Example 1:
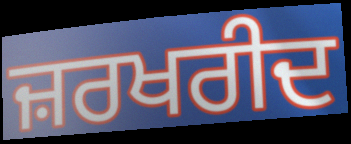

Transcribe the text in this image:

ਜ਼ਰਖਰੀਦ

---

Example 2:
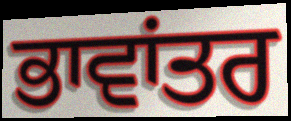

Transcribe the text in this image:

ਭਾਵਾਂਤਰ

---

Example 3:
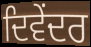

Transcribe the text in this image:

ਦਿਵੇਂਦਰ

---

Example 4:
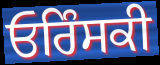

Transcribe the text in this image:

ਓਰਿੰਸਕੀ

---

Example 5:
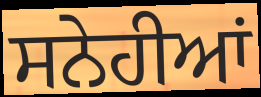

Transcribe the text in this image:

ਸਨੇਹੀਆਂ